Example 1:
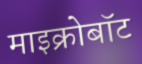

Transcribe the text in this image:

माइक्रोबॉट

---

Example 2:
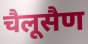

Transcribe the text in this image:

चैलूसैण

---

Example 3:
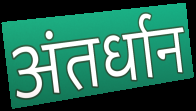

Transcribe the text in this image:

अंतर्धान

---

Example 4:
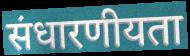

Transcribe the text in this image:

संधारणीयता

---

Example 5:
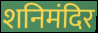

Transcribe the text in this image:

शनिमंदिर